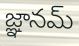
జ్ఞానమ్